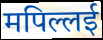
मपिल्लई